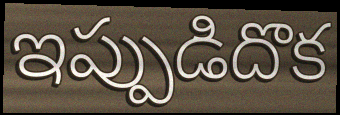
ఇప్పుడిదొక